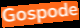
Gospode